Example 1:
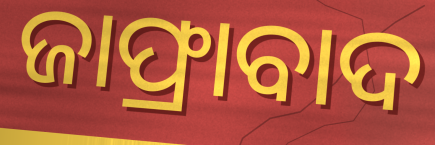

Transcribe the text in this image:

ଜାଫ୍ରାବାଦ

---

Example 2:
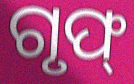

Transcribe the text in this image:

ଗୃଫ୍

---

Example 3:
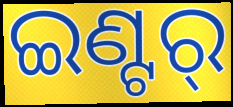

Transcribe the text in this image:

ଇଣ୍ଟର୍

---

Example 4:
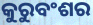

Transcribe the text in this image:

କୁରୁବଂଶର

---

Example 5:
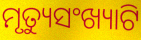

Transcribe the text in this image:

ମୃତ୍ୟୁସଂଖ୍ୟାଟି